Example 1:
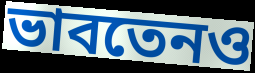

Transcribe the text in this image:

ভাবতেনও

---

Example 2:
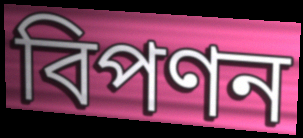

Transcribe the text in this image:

বিপণন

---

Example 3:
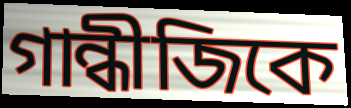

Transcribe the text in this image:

গান্ধীজিকে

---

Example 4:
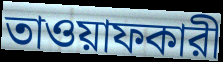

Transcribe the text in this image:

তাওয়াফকারী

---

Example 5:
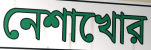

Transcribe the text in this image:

নেশাখোর